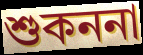
শুকননা